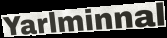
Yarlminnal